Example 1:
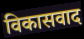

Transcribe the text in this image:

विकासवाद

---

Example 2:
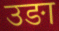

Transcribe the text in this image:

उङा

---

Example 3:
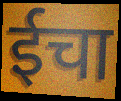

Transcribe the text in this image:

ईचा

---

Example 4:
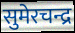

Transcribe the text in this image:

सुमेरचन्द्र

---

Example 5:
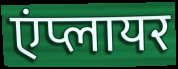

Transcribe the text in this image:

एंप्लायर